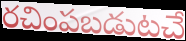
రచింపబడుటచే